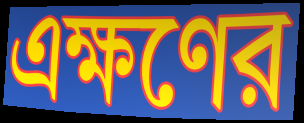
এক্ষণের